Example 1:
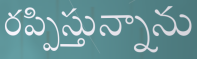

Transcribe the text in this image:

రప్పిస్తున్నాను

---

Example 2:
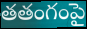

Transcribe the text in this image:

తతంగంపై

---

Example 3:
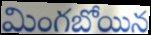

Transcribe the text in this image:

మింగబోయిన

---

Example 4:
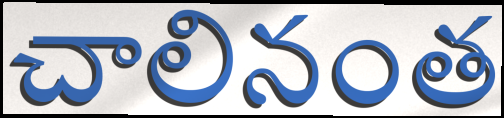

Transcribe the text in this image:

చాలినంత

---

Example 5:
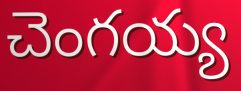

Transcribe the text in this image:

చెంగయ్య